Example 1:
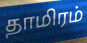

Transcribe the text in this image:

தாமிரம்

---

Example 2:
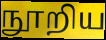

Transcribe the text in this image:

நூறிய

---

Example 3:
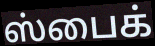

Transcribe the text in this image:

ஸ்பைக்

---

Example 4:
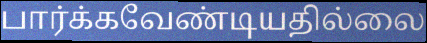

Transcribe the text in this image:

பார்க்கவேண்டியதில்லை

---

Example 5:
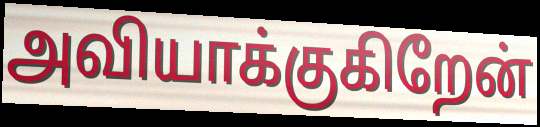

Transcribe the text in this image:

அவியாக்குகிறேன்